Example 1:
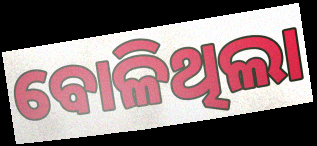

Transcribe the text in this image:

ବୋଳିଥିଲା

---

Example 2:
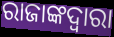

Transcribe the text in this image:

ରାଜାଙ୍କଦ୍ଵାରା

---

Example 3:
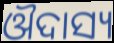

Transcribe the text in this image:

ଔଦାସ୍ୟ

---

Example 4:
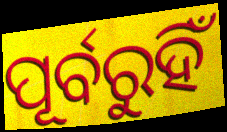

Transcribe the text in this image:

ପୂର୍ବରୁହିଁ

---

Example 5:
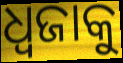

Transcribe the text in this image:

ଧ୍ୱଜାକୁ